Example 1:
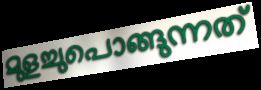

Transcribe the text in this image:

മുളച്ചുപൊങ്ങുന്നത്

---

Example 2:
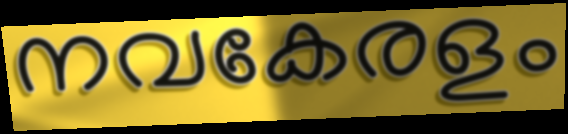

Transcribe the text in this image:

നവകേരളം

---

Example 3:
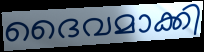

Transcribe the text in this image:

ദൈവമാക്കി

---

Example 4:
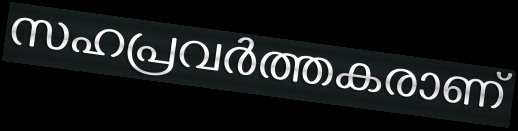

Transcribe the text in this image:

സഹപ്രവർത്തകരാണ്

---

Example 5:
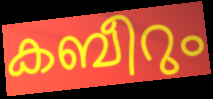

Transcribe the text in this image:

കബീറും